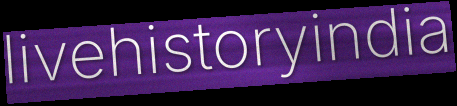
livehistoryindia